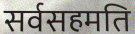
सर्वसहमति